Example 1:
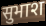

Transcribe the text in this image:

सुभाश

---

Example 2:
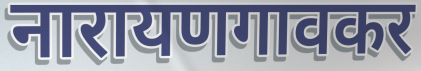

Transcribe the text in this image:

नारायणगावकर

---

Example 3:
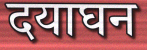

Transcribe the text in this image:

दयाघन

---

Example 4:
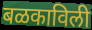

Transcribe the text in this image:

बळकाविली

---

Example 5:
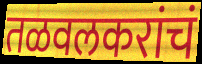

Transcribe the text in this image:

तळवलकरांचं